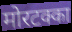
मोरटक्का